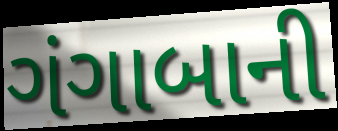
ગંગાબાની